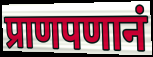
प्राणपणानं